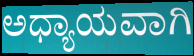
ಅಧ್ಯಾಯವಾಗಿ